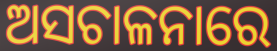
ଅସଚାଳନାରେ